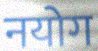
नयोग